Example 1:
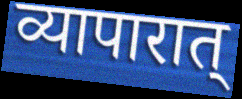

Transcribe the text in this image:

व्यापारात्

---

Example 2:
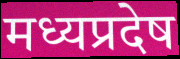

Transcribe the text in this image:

मध्यप्रदेष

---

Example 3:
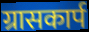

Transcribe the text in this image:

ग्रासकार्प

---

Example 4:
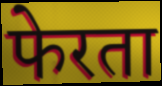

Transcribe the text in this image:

फेरता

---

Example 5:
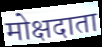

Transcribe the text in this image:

मोक्षदाता